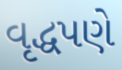
વૃદ્ધપણે